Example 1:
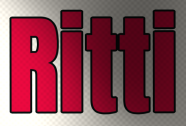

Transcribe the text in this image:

Ritti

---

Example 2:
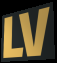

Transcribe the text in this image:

LV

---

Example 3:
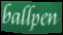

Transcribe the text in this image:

ballpen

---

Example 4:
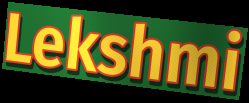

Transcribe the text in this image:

Lekshmi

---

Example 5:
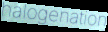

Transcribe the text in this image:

halogenation